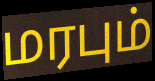
மரபும்